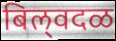
बिल्वदळ